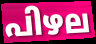
പിഴല